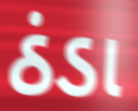
ઠંડા